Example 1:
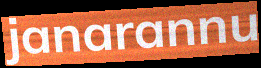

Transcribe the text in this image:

janarannu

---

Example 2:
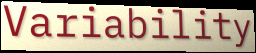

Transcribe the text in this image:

Variability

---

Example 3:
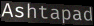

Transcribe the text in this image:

Ashtapad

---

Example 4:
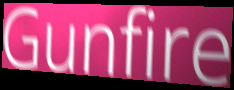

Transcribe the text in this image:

Gunfire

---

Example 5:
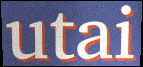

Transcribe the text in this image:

utai